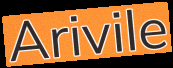
Arivile